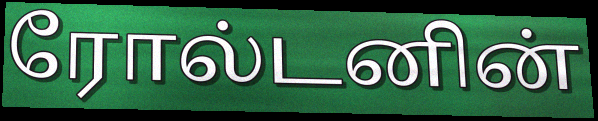
ரோல்டனின்